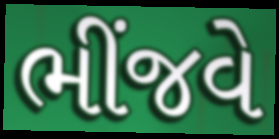
ભીંજવે